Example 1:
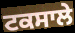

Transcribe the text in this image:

ਟਕਸਾਲੇ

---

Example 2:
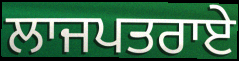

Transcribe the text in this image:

ਲਾਜਪਤਰਾਏ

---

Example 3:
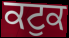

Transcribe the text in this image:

ਕਟੁਕ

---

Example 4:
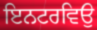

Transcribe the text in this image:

ਇਨਟਰਵਿਉ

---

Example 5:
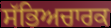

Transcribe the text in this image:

ਸੱਭਿਅਚਾਰਕ